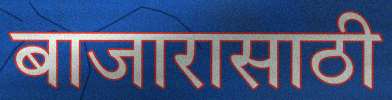
बाजारासाठी